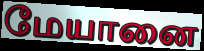
மேயானை